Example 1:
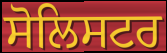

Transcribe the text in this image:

ਸੋਲਿਸਟਰ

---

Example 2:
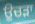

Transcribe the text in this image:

ਉਚੜਾ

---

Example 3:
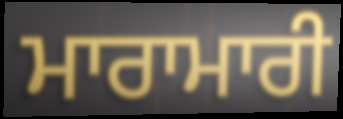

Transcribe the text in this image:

ਮਾਰਾਮਾਰੀ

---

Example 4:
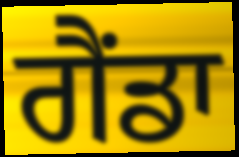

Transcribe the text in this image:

ਗੈਂਡਾ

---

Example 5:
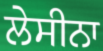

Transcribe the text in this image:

ਲੇਸੀਨਾ